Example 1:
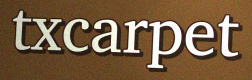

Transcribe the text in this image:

txcarpet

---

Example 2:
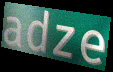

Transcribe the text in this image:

adze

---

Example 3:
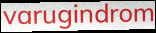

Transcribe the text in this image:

varugindrom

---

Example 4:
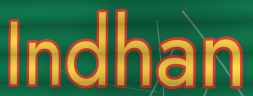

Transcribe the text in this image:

Indhan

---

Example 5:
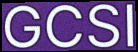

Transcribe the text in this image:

GCSI